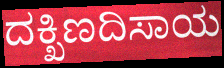
ದಕ್ಖಿಣದಿಸಾಯ